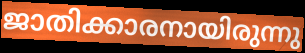
ജാതിക്കാരനായിരുന്നു